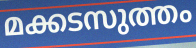
മക്കടസുത്തം